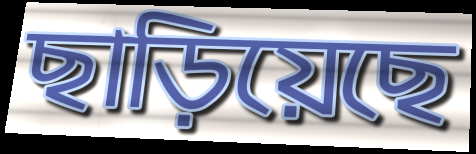
ছাড়িয়েছে